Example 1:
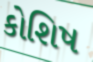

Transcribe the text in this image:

કોશિષ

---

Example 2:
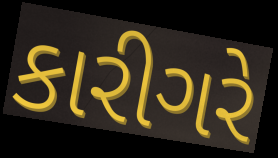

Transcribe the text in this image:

કારીગરે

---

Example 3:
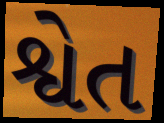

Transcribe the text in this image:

શ્વેત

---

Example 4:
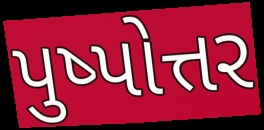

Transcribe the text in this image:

પુષ્પોત્તર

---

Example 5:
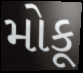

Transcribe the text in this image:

મોકૂ